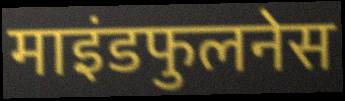
माइंडफुलनेस